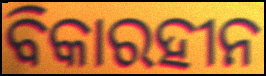
ବିକାରହୀନ